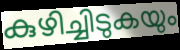
കുഴിച്ചിടുകയും